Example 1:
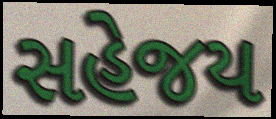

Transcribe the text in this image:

સહેજય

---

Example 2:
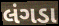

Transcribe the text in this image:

લંગડા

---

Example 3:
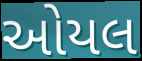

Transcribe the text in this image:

ઓયલ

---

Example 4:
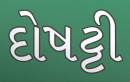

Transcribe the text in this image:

દોષટ્ટી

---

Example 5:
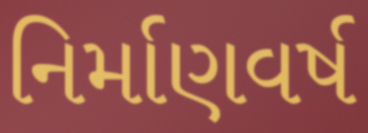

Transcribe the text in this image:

નિર્માણવર્ષ